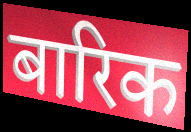
बारिक